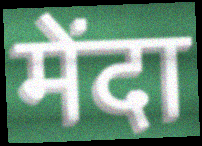
मेंदा